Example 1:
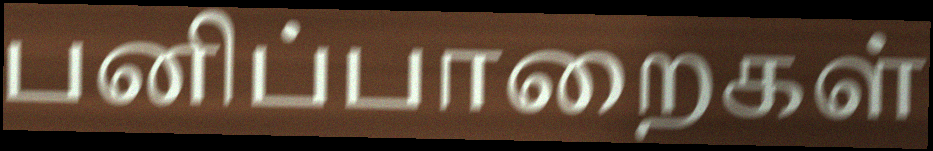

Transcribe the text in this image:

பனிப்பாறைகள்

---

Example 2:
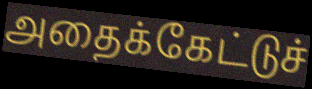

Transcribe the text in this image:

அதைக்கேட்டுச்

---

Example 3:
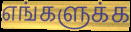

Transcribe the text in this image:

எங்களுக்க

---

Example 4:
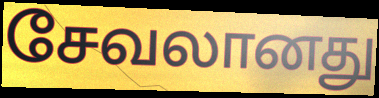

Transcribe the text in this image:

சேவலானது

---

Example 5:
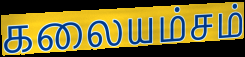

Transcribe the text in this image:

கலையம்சம்